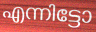
എന്നിട്ടോ